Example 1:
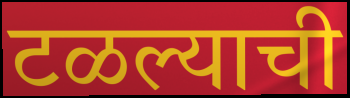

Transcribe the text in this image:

टळल्याची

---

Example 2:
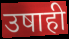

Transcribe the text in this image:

उषाही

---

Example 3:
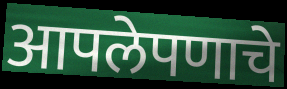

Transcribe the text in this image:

आपलेपणाचे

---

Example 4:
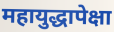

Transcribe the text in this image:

महायुद्धापेक्षा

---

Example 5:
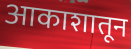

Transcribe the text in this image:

आकाशातून